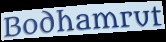
Bodhamrut